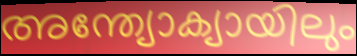
അന്ത്യോക്യായിലും